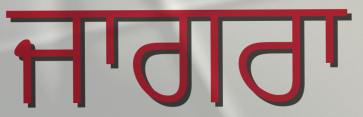
ਜਾਗਰਾ